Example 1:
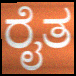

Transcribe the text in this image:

ರೈತ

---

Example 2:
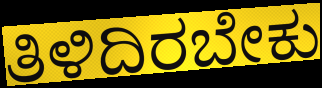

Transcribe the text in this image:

ತಿಳಿದಿರಬೇಕು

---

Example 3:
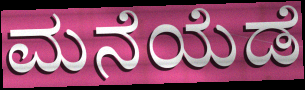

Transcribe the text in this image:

ಮನೆಯೆಡೆ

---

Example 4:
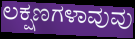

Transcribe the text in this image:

ಲಕ್ಷಣಗಳಾವುವು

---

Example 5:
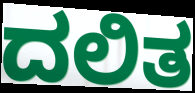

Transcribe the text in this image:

ದಲಿತ